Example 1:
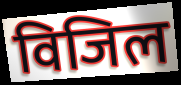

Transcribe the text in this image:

विजिल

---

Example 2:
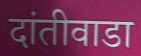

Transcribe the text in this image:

दांतीवाडा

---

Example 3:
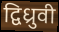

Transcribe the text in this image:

द्विध्रुवी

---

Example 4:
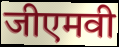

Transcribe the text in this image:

जीएमवी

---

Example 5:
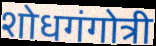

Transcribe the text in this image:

शोधगंगोत्री